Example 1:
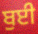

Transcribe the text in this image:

ਬੁਈ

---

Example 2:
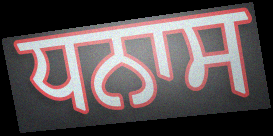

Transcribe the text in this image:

ਧਨਾਸ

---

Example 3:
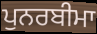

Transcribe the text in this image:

ਪੁਨਰਬੀਮਾ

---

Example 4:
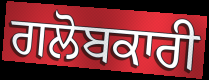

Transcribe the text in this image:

ਗਲੋਬਕਾਰੀ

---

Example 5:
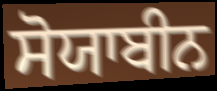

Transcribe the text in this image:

ਸੋਯਾਬੀਨ